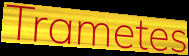
Trametes